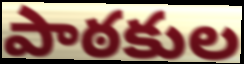
పాఠకుల